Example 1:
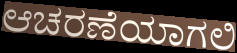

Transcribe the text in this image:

ಆಚರಣೆಯಾಗಲಿ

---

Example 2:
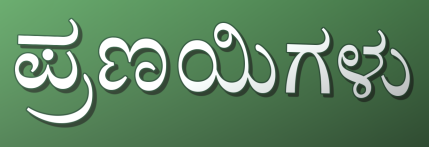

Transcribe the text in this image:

ಪ್ರಣಯಿಗಳು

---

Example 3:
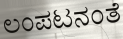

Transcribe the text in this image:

ಲಂಪಟನಂತೆ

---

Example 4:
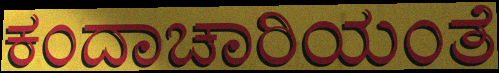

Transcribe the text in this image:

ಕಂದಾಚಾರಿಯಂತೆ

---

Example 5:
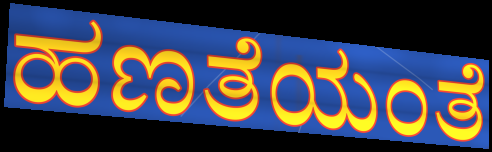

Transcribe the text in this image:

ಹಣತೆಯಂತೆ